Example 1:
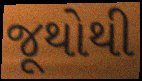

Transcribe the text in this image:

જૂથોથી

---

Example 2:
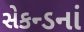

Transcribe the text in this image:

સેકન્ડનાં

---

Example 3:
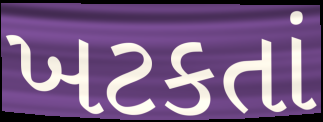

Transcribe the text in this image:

ખટકતાં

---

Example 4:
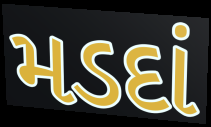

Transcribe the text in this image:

મડદાં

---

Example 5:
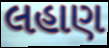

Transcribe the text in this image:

લહાણ